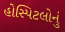
હોસ્પિટલોનું